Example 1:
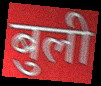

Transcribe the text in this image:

बुली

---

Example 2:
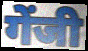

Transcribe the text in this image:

गेंजी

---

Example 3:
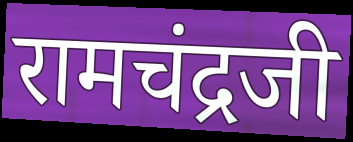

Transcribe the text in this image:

रामचंद्रजी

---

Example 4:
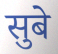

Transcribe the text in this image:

सुबे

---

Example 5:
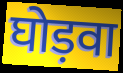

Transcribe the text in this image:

घोड़वा